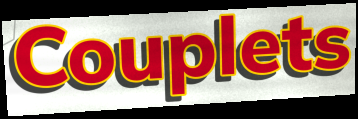
Couplets